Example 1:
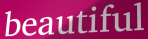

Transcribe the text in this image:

beautiful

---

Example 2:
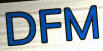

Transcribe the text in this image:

DFM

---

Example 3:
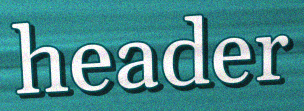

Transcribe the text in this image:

header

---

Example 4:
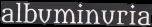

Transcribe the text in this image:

albuminuria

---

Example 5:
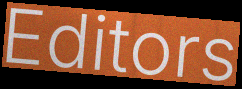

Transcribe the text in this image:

Editors